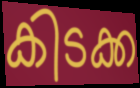
കിടക്ക